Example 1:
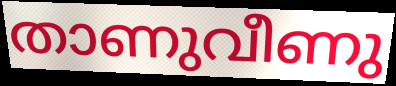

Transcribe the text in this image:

താണുവീണു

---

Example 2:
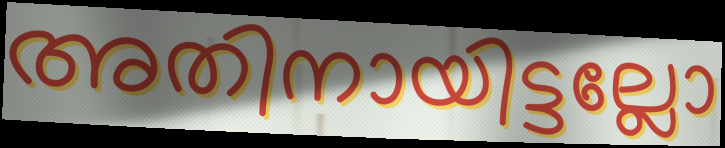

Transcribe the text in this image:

അതിനായിട്ടല്ലോ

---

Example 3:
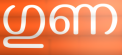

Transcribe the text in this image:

ഗുണ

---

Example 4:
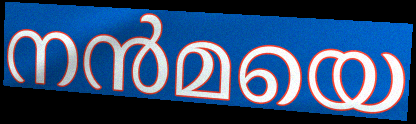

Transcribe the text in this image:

നൻമയെ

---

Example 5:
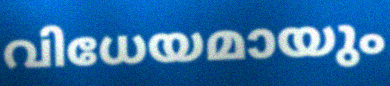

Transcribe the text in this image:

വിധേയമായും